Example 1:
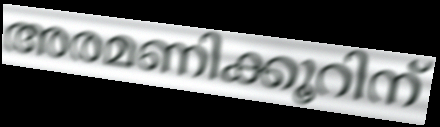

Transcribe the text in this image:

അരമണിക്കൂറിന്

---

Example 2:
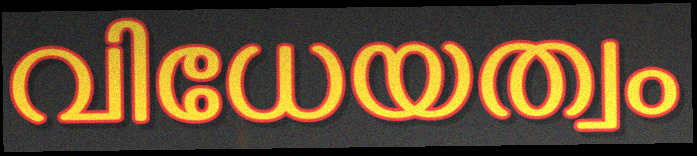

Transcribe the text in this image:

വിധേയത്വം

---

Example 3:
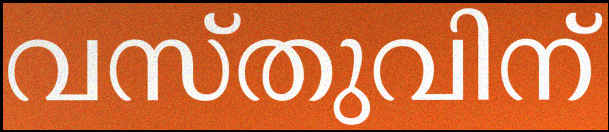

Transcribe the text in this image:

വസ്തുവിന്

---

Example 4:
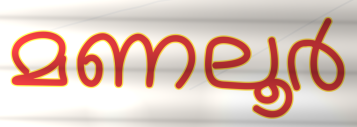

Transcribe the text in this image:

മണലൂർ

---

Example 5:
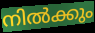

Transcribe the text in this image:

നിൽക്കും